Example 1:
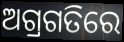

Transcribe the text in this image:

ଅଗ୍ରଗତିରେ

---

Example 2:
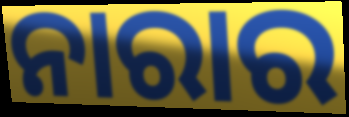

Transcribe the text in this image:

ନାରାର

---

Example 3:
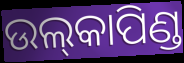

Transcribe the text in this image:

ଉଲ୍‌କାପିଣ୍ଡ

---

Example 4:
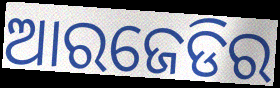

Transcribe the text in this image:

ଆରଜେଡିର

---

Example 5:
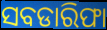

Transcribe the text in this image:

ସବଡାରିଫା